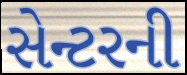
સેન્ટરની